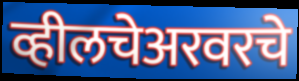
व्हीलचेअरवरचे